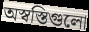
অস্বস্তিগুলো